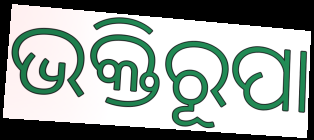
ଭକ୍ତିରୂପା